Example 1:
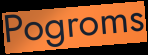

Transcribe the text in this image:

Pogroms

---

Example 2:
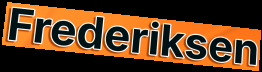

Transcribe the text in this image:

Frederiksen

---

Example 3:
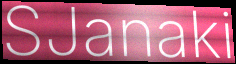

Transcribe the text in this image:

SJanaki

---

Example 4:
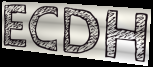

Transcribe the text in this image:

ECDH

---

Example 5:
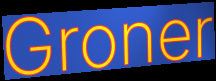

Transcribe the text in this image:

Groner